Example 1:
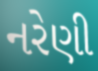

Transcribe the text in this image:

નરેણી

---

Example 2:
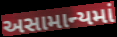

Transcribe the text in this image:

અસામાન્યમાં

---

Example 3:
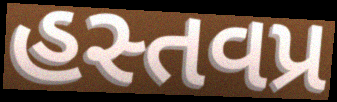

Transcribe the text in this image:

હસ્તવપ્ર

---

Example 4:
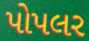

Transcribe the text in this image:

પોપલર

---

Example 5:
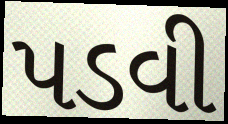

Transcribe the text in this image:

પડવી